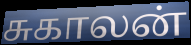
சுகாலன்